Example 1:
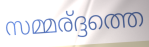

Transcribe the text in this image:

സമ്മര്ദ്ദത്തെ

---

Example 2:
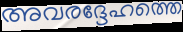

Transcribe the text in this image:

അവരദ്ദേഹത്തെ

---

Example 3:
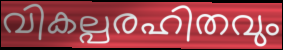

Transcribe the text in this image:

വികല്പരഹിതവും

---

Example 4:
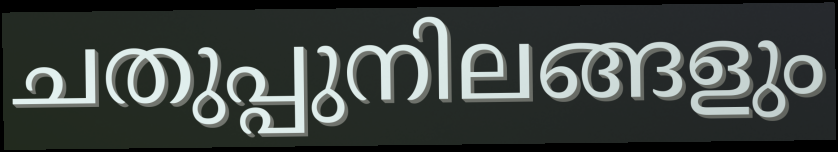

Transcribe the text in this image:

ചതുപ്പുനിലങ്ങളും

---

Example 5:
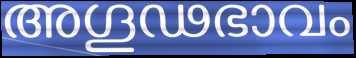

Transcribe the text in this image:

അഗൂഢഭാവം